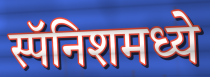
स्पॅनिशमध्ये